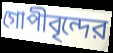
গোপীবৃন্দের